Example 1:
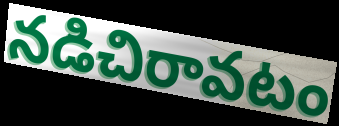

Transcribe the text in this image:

నడిచిరావటం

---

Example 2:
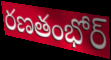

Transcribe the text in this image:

రణతంభోర్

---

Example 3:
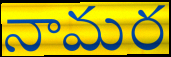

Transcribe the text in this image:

నామర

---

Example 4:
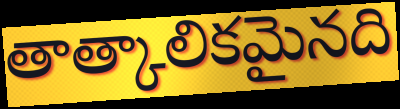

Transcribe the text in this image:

తాత్కాలికమైనది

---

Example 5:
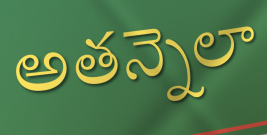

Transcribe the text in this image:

అతన్నెలా